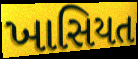
ખાસિયત